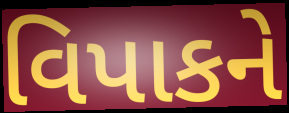
વિપાકને